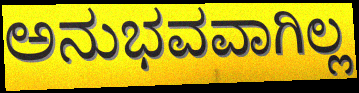
ಅನುಭವವಾಗಿಲ್ಲ